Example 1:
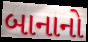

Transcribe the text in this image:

બાનાનો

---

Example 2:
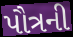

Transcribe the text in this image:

પૌત્રની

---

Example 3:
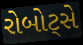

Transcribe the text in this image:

રોબોટ્સે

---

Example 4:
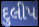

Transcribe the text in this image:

દુલીપ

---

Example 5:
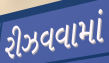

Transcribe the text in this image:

રીઝવવામાં